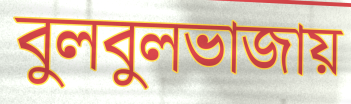
বুলবুলভাজায়